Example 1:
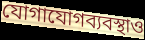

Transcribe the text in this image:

যোগাযোগব্যবস্থাও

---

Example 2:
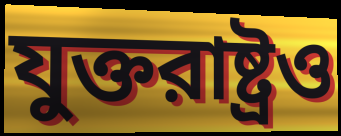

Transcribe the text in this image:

যুক্তরাষ্ট্রও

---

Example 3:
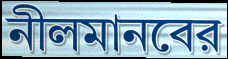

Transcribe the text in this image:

নীলমানবের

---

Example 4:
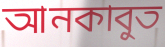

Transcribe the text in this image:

আনকাবুত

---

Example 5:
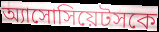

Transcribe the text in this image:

অ্যাসোসিয়েটসকে